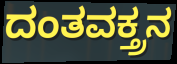
ದಂತವಕ್ತ್ರನ